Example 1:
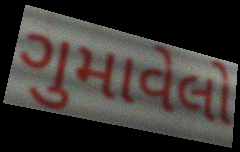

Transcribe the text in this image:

ગુમાવેલો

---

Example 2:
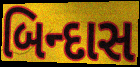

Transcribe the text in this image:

બિન્દાસ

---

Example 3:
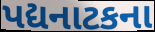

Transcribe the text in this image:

પદ્યનાટકના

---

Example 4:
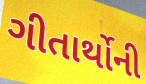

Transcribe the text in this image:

ગીતાર્થોની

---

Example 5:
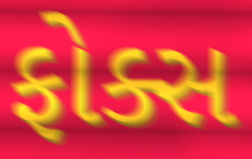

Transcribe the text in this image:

ફોક્સ